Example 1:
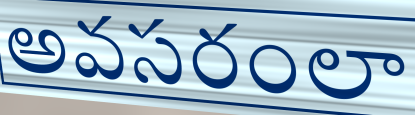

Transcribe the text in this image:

అవసరంలా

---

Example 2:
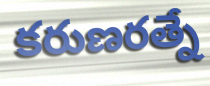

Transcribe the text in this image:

కరుణరత్నే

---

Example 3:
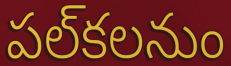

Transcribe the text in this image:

పల్‌కలనుం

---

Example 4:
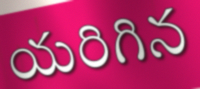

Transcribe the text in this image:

యరిగిన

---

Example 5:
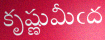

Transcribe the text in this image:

కృష్ణుమీఁద